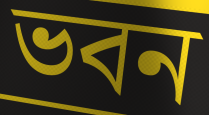
ভবন